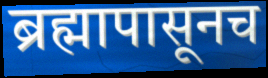
ब्रह्मापासूनच